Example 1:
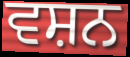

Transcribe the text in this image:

ਵਸ਼ਨ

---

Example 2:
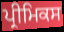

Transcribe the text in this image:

ਪ੍ਰੀਮਿਕਸ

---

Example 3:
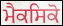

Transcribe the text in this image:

ਮੈਕਸਿਕੋ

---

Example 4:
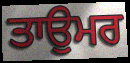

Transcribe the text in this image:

ਤਾਉਮਰ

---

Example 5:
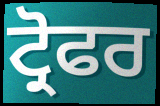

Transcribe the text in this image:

ਟ੍ਰੋਫਰ